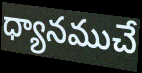
ధ్యానముచే